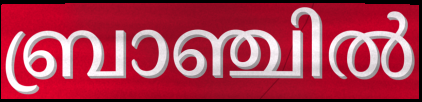
ബ്രാഞ്ചിൽ